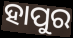
ହାପୁର